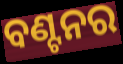
ବଣ୍ଟନର